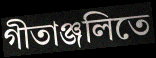
গীতাঞ্জলিতে